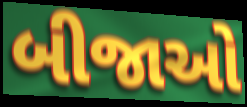
બીજાઓ